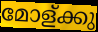
മോള്ക്കു